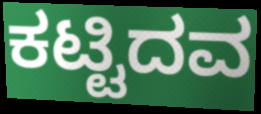
ಕಟ್ಟಿದವ